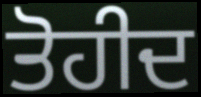
ਤੋਹੀਦ